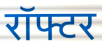
रॉफ्टर